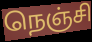
நெஞ்சி